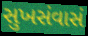
સુખસંવાસં